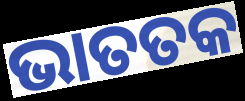
ଭାତତକ